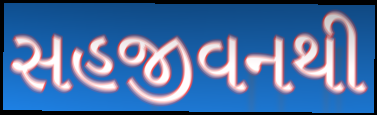
સહજીવનથી